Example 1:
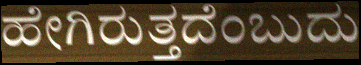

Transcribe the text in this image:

ಹೇಗಿರುತ್ತದೆಂಬುದು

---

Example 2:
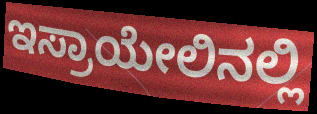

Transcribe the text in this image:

ಇಸ್ರಾಯೇಲಿನಲ್ಲಿ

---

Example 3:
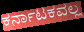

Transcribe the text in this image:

ಕರ್ನಾಟಕವಲ್ಲ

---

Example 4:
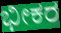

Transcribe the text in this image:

ಭೀಕರ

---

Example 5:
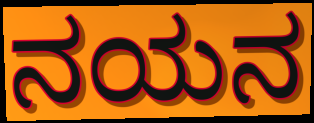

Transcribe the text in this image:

ನಯನ